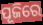
ପୂଜିରେ